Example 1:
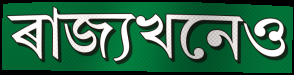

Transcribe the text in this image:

ৰাজ্যখনেও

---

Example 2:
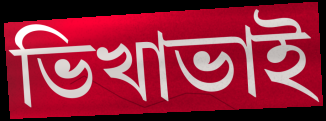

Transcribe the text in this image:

ভিখাভাই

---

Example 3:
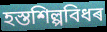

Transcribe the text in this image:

হস্তশিল্পবিধৰ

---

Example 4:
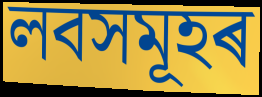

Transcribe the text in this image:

লবসমূহৰ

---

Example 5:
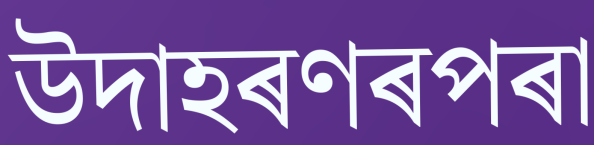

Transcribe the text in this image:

উদাহৰণৰপৰা